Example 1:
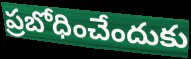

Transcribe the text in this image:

ప్రబోధించేందుకు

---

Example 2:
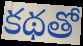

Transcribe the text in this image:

కథతో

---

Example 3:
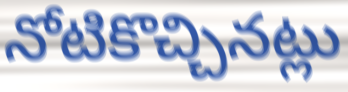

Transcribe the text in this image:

నోటికొచ్చినట్లు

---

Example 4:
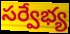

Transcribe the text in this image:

సర్వేభ్య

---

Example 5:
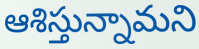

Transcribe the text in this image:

ఆశిస్తున్నామని